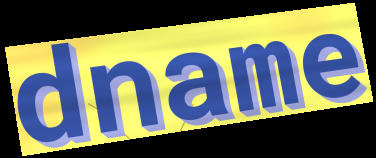
dname